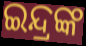
ଇନ୍ଦ୍ରଙ୍କ